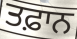
ਤਫ਼ਾਨ